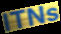
ITNs